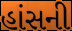
હાંસની